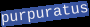
purpuratus